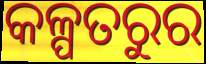
କଳ୍ପତରୁର